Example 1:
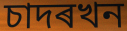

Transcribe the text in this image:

চাদৰখন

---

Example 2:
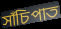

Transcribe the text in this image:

সাঁচিপাত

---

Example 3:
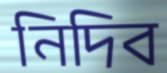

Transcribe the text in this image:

নিদিব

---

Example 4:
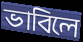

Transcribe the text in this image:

ভাবিলে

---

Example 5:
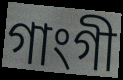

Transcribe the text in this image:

গাংগী